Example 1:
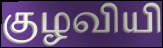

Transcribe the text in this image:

குழவியி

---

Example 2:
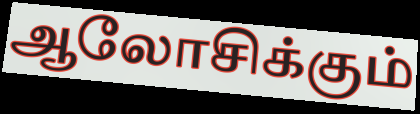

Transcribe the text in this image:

ஆலோசிக்கும்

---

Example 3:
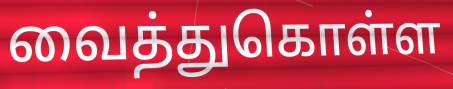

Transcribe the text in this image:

வைத்துகொள்ள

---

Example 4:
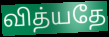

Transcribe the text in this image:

வித்யதே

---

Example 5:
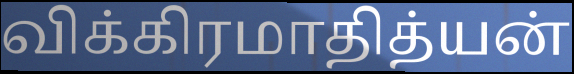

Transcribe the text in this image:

விக்கிரமாதித்யன்